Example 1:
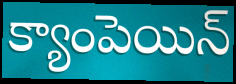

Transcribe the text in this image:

క్యాంపెయిన్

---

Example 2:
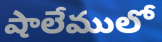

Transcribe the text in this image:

షాలేములో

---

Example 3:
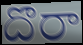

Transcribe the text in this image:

దొరా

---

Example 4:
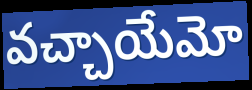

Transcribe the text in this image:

వచ్చాయేమో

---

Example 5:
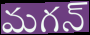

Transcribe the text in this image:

మగన్